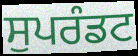
ਸੁਪਰੰਡਟ